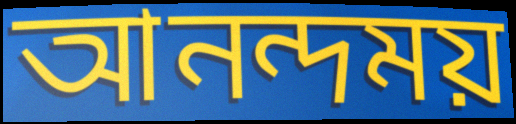
আনন্দময়